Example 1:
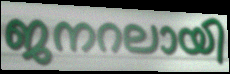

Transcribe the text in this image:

ജനറലായി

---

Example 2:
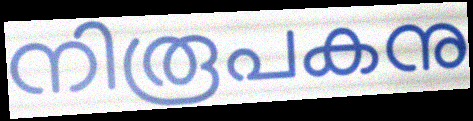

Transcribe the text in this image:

നിരൂപകനു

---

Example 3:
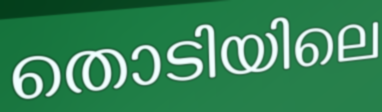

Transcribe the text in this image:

തൊടിയിലെ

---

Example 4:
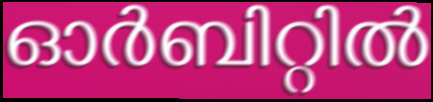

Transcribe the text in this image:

ഓർബിറ്റിൽ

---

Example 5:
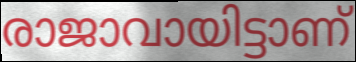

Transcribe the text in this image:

രാജാവായിട്ടാണ്